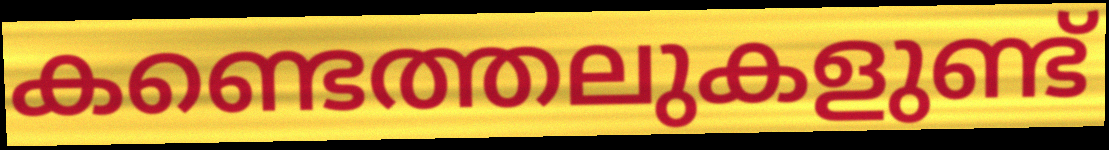
കണ്ടെത്തലുകളുണ്ട്